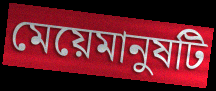
মেয়েমানুষটি